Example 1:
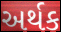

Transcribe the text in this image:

અર્થક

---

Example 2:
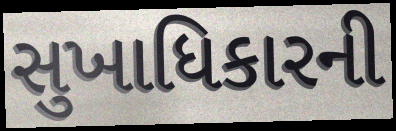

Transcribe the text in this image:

સુખાધિકારની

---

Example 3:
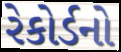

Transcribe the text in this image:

રેકોર્ડનો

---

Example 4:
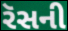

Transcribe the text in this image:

રૅસની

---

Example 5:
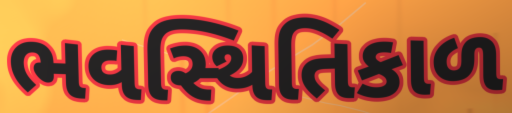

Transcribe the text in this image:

ભવસ્થિતિકાળ